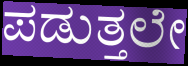
ಪಡುತ್ತಲೇ